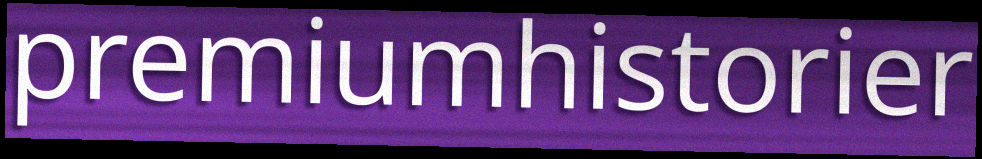
premiumhistorier